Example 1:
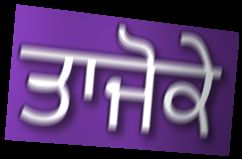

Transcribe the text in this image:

ਤਾਜੋਕੇ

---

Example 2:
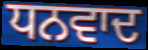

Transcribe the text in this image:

ਧਨਵਾਦ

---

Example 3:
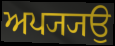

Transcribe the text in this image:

ਅਪ੍ਯ੍ਯਉ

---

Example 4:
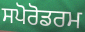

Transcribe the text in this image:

ਸਪੋਰੋਡਰਮ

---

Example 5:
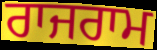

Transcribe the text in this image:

ਰਾਜਰਾਮ